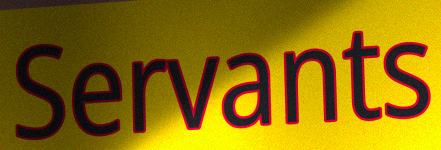
Servants